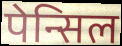
पेन्सिल